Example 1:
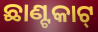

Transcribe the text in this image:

ଛାଣ୍ଟକାଟ୍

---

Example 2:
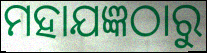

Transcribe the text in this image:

ମହାଯଜ୍ଞଠାରୁ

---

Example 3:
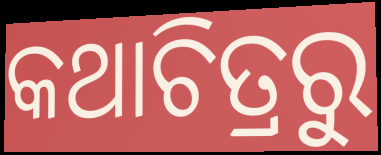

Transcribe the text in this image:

କଥାଚିତ୍ରରୁ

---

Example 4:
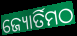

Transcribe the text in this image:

ଜ୍ୟୋର୍ତିମଠ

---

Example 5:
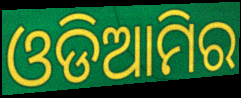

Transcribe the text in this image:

ଓଡିଆମିର